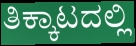
ತಿಕ್ಕಾಟದಲ್ಲಿ